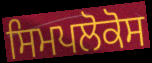
ਸਿਮਪਲੋਕੋਸ